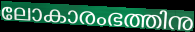
ലോകാരംഭത്തിനു